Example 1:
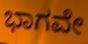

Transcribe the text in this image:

ಭಾಗವೇ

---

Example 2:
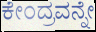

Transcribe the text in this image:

ಕೇಂದ್ರವನ್ನೇ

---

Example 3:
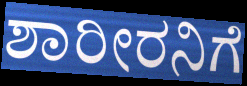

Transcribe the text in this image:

ಶಾರೀರನಿಗೆ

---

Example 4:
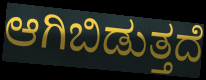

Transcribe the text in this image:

ಆಗಿಬಿಡುತ್ತದೆ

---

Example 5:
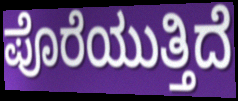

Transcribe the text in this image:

ಪೊರೆಯುತ್ತಿದೆ